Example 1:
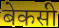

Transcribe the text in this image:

बेकसी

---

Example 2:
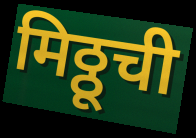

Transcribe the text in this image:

मिठ्ठूची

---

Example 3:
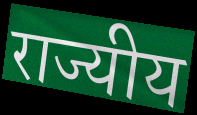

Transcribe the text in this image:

राज्यीय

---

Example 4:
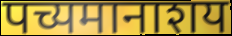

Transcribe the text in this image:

पच्यमानाशय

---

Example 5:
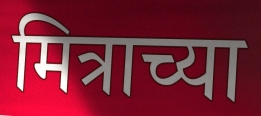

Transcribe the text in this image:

मित्राच्या